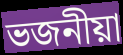
ভজনীয়া